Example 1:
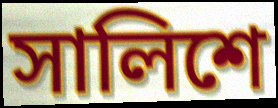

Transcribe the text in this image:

সালিশে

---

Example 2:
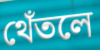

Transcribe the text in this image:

থেঁতলে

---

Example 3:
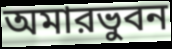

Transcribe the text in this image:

অমারভুবন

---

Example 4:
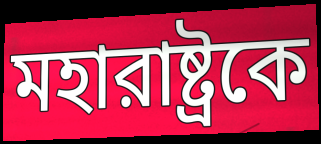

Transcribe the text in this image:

মহারাষ্ট্রকে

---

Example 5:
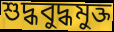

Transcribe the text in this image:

শুদ্ধবুদ্ধমুক্ত